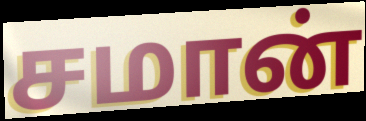
சமான்